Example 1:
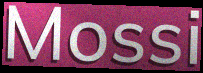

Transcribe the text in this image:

Mossi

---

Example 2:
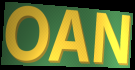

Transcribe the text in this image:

OAN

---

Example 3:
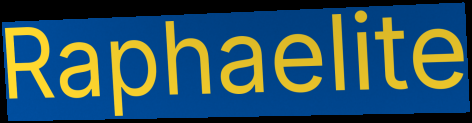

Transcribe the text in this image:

Raphaelite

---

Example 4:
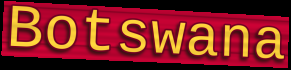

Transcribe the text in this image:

Botswana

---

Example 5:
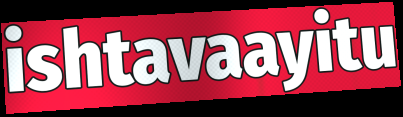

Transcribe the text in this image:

ishtavaayitu